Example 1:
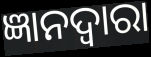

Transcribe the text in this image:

ଜ୍ଞାନଦ୍ଵାରା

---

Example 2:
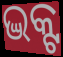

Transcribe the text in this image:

ଦ୍ଭକ୍ଟ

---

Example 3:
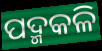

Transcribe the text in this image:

ପଦ୍ମକଳି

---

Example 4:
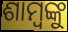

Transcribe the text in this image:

ଶାମ୍ବଙ୍କୁ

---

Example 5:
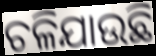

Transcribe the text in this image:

ଚଳିଯାଉଛି